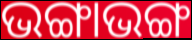
ଭଙ୍ଗାଭଙ୍ଗ